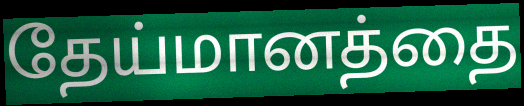
தேய்மானத்தை